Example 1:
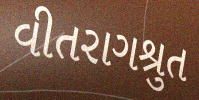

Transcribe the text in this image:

વીતરાગશ્રુત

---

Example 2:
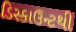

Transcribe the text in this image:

ડિસ્કાઉન્ટથી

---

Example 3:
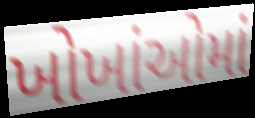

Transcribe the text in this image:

ખોખાંઓમાં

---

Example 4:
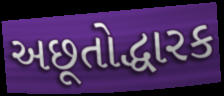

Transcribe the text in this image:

અછૂતોદ્ધારક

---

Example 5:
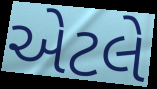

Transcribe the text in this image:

એેટલે